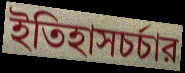
ইতিহাসচর্চার